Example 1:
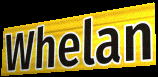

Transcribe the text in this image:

Whelan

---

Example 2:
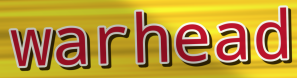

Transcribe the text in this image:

warhead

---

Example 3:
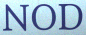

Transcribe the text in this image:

NOD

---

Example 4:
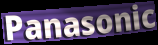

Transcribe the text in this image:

Panasonic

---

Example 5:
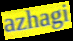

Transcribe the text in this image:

azhagi